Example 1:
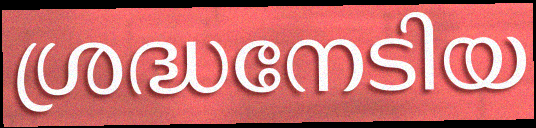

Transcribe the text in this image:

ശ്രദ്ധനേടിയ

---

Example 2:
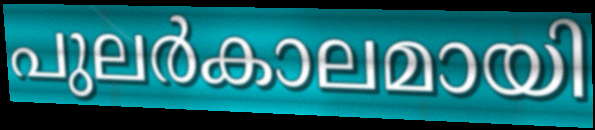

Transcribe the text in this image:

പുലർകാലമായി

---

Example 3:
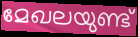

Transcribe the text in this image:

മേഖലയുണ്ട്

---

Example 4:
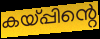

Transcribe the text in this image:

കയ്പ്പിന്റെ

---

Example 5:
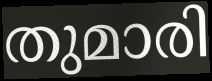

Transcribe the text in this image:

തുമാരി